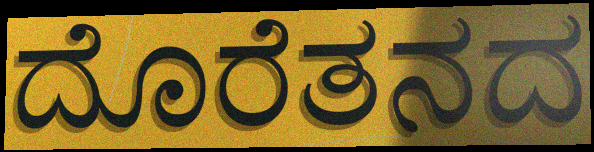
ದೊರೆತನದ